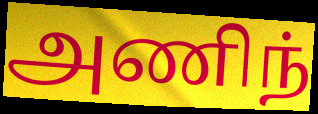
அணிந்